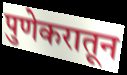
पुणेकरातून